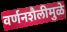
वर्णनशैलीमुळे